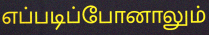
எப்படிப்போனாலும்